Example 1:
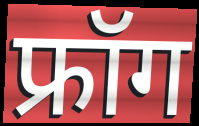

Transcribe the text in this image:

फ्रॉग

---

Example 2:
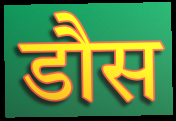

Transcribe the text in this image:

डौस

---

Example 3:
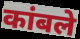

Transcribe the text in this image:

कांबले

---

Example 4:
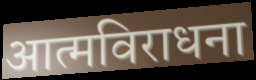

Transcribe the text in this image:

आत्मविराधना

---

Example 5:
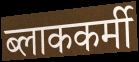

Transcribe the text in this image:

ब्लाककर्मी